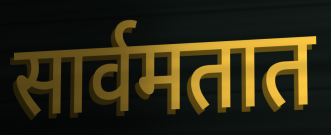
सार्वमतात